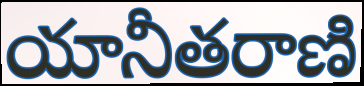
యానీతరాణి